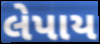
લેપાય